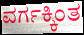
ವರ್ಗಕ್ಕಿಂತ